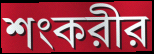
শংকরীর